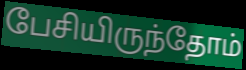
பேசியிருந்தோம்